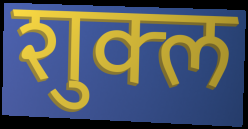
शुक्‍ल